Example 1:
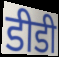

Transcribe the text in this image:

डीडी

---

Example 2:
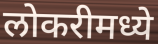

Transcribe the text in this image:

लोकरीमध्ये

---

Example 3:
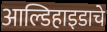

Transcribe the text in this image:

आल्डिहाइडाचे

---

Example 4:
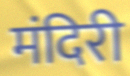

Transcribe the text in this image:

मंदिरी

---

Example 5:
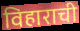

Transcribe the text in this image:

विहाराची